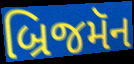
બ્રિજમૅન